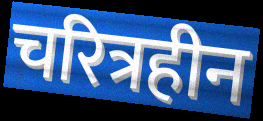
चरित्रहीन